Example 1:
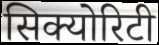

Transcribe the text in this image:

सिक्योरिटी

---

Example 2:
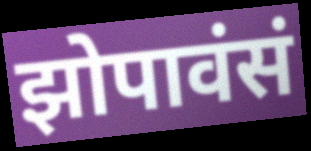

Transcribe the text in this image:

झोपावंसं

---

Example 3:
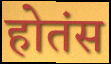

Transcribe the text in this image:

होतंस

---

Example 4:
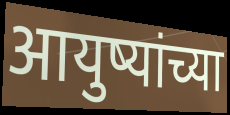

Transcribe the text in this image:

आयुष्यांच्या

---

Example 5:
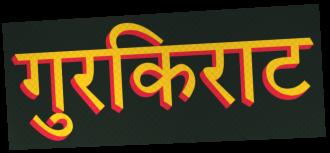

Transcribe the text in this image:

गुरकिराट